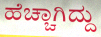
ಹೆಚ್ಚಾಗಿದ್ದು